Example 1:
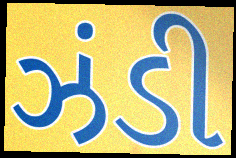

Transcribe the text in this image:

ઝંડી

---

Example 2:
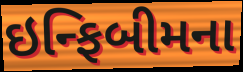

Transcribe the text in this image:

ઇન્ફિબીમના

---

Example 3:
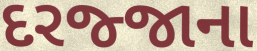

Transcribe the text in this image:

દરજ્જાના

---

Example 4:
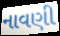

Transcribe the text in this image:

નાવણી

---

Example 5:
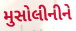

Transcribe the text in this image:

મુસોલીનીને